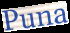
Puna